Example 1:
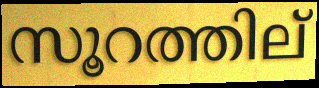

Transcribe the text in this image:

സൂറത്തില്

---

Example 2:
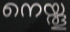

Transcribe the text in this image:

നെയ്തൂ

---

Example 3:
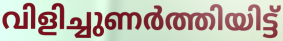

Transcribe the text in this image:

വിളിച്ചുണർത്തിയിട്ട്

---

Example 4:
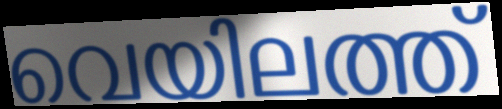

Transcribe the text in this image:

വെയിലത്ത്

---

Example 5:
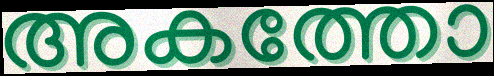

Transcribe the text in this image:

അകത്തോ